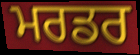
ਮਰਡਰ